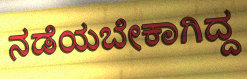
ನಡೆಯಬೇಕಾಗಿದ್ದ